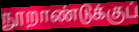
நூறாண்டுக்குப்